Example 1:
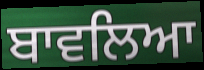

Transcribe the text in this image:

ਬਾਵਲਿਆ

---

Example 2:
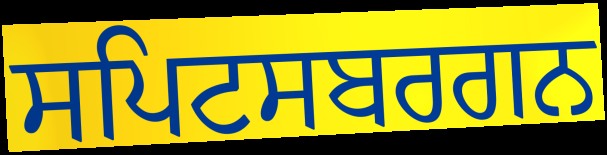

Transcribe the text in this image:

ਸਪਿਟਸਬਰਗਨ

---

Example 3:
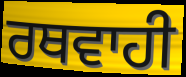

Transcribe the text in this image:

ਰਥਵਾਹੀ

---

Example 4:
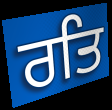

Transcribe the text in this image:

ਰਤਿ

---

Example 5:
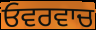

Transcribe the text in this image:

ਓਵਰਵਾਚ